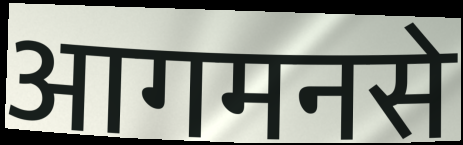
आगमनसे